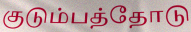
குடும்பத்தோடு